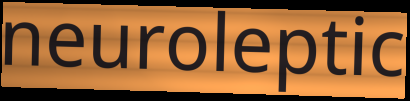
neuroleptic